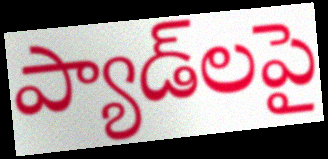
ప్యాడ్‌లపై